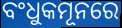
ବଂଧୁକମୂନରେ